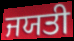
ਜਯਤੀ